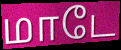
மாடே